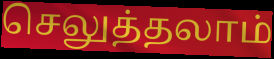
செலுத்தலாம்